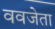
ववजेता